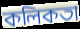
কলিকতা